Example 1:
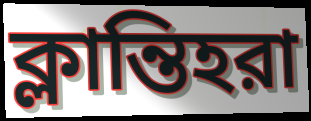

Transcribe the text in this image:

ক্লান্তিহরা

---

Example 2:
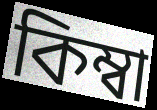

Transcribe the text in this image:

কিম্বা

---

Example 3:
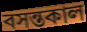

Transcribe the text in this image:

বসন্তকাল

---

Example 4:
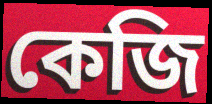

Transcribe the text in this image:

কেজি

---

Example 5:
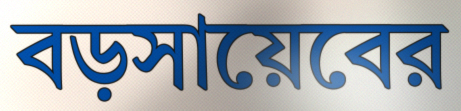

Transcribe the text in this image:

বড়সায়েবের